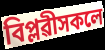
বিপ্লৱীসকলে